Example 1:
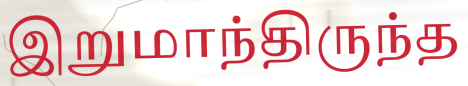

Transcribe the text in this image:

இறுமாந்திருந்த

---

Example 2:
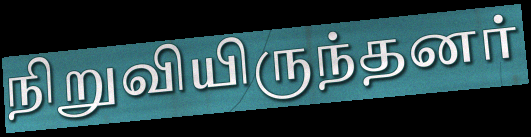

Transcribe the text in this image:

நிறுவியிருந்தனர்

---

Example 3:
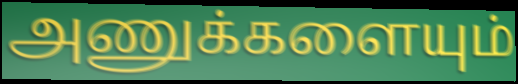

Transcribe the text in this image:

அணுக்களையும்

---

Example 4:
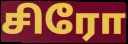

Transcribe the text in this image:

சிரோ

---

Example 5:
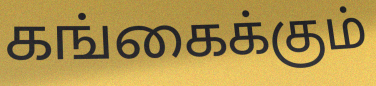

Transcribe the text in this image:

கங்கைக்கும்